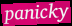
panicky